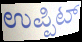
ಉಪ್ಪಿಟ್